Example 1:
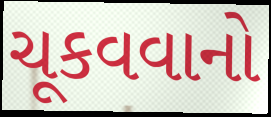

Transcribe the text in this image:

ચૂકવવાનો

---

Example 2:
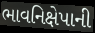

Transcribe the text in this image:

ભાવનિક્ષેપાની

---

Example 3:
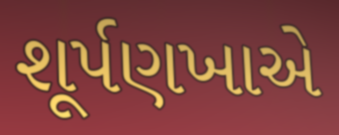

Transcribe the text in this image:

શૂર્પણખાએ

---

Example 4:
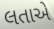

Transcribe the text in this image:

લતાએ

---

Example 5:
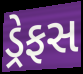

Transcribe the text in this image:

ડ્રેફસ